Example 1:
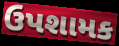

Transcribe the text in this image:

ઉપશામક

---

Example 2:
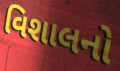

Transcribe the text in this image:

વિશાલનો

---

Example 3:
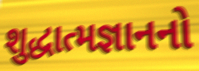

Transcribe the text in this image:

શુદ્ધાત્મજ્ઞાનનો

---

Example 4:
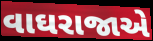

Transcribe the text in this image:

વાઘરાજાએ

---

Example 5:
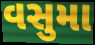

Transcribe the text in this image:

વસુમા